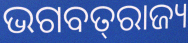
ଭଗବତ୍‌ରାଜ୍ୟ